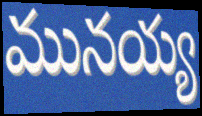
మునయ్య